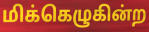
மிக்கெழுகின்ற